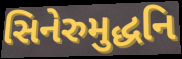
સિનેરુમુદ્ધનિ